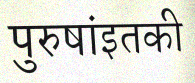
पुरुषांइतकी